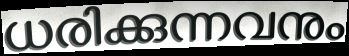
ധരിക്കുന്നവനും